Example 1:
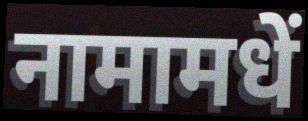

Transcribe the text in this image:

नामामधें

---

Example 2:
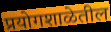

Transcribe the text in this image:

प्रयोगशाळेतील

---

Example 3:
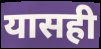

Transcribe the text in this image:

यासही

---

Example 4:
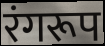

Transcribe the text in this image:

रंगरूप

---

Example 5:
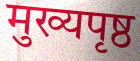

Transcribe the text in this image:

मुख्यपृष्ठ